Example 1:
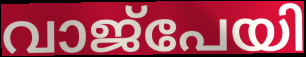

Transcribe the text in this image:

വാജ്പേയി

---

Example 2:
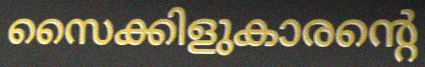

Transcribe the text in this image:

സൈക്കിളുകാരന്റെ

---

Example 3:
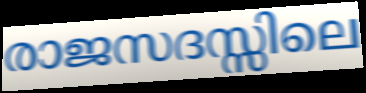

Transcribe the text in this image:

രാജസദസ്സിലെ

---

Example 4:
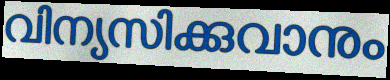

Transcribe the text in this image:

വിന്യസിക്കുവാനും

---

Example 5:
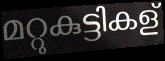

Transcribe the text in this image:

മറ്റുകുട്ടികള്